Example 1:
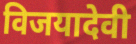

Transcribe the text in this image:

विजयादेवी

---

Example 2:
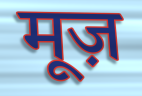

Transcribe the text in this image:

मूज़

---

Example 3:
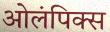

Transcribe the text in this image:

ओलंपिक्‍स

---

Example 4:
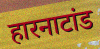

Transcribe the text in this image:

हारनाटांड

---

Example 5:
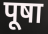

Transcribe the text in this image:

पूषा